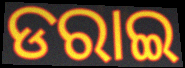
ଡରାଇ